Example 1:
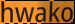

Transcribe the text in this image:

hwako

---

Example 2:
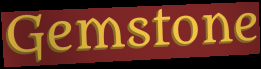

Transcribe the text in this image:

Gemstone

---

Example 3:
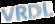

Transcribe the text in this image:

VRDL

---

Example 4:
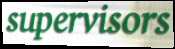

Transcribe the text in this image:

supervisors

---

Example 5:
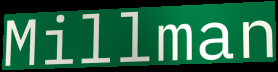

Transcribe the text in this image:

Millman